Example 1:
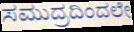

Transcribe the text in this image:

ಸಮುದ್ರದಿಂದಲೇ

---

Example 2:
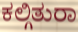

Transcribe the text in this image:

ಕಲ್ಗಿತುರಾ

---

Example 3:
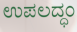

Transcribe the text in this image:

ಉಪಲದ್ಧಂ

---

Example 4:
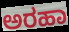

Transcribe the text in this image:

ಅರಹಾ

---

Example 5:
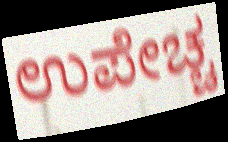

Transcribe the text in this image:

ಉಪೇಚ್ಚ